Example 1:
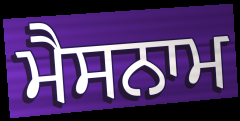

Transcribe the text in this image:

ਮੈਸਨਾਮ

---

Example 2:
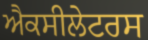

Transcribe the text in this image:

ਐਕਸੀਲੇਟਰਸ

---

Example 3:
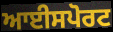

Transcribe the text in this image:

ਆਈਸਪੋਰਟ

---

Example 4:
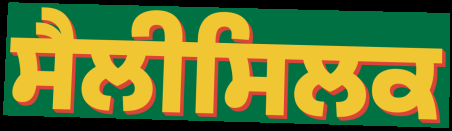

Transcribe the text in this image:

ਸੈਲੀਸਿਲਕ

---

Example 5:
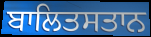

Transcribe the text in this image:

ਬਾਲਿਤਸਤਾਨ